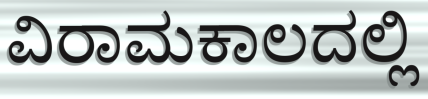
ವಿರಾಮಕಾಲದಲ್ಲಿ